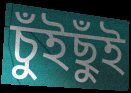
চুঁইছুঁই